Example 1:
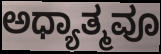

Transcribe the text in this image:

ಅಧ್ಯಾತ್ಮವೂ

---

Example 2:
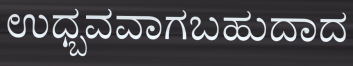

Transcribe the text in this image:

ಉಧ್ಬವವಾಗಬಹುದಾದ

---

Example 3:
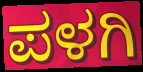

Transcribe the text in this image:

ಪಳಗಿ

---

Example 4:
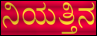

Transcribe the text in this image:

ನಿಯತ್ತಿನ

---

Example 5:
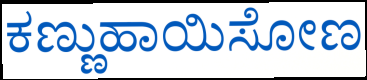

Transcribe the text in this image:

ಕಣ್ಣುಹಾಯಿಸೋಣ